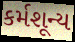
કર્મશૂન્ય